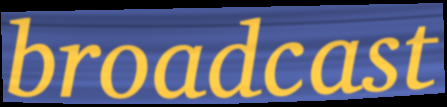
broadcast